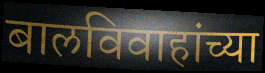
बालविवाहांच्या